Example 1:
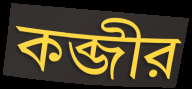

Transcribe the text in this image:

কব্জীর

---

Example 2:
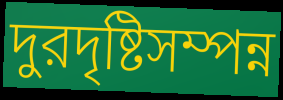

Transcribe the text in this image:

দুরদৃষ্টিসম্পন্ন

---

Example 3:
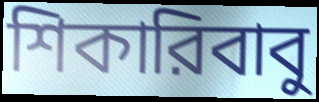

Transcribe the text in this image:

শিকারিবাবু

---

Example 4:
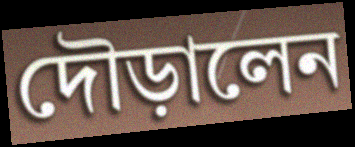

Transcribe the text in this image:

দৌড়ালেন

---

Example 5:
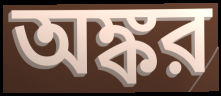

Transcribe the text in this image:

অঙ্কর